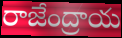
రాజేంద్రాయ